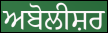
ਅਬੋਲੀਸ਼ਰ